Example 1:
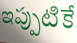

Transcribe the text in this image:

ఇప్పుటికే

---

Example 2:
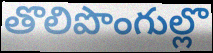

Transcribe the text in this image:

తొలిపొంగుల్లొ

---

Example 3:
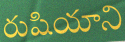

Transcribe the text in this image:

రుషియాని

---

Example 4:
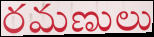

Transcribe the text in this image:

రమణులు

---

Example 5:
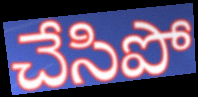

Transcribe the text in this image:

చేసిపో